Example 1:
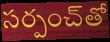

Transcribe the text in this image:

సర్పంచ్‌తో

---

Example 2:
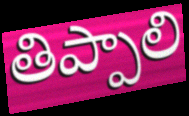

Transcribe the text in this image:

తిప్పాలి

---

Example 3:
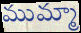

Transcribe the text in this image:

ముమ్మా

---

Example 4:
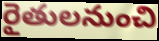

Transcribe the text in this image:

రైతులనుంచి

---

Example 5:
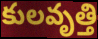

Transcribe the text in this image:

కులవృత్తి